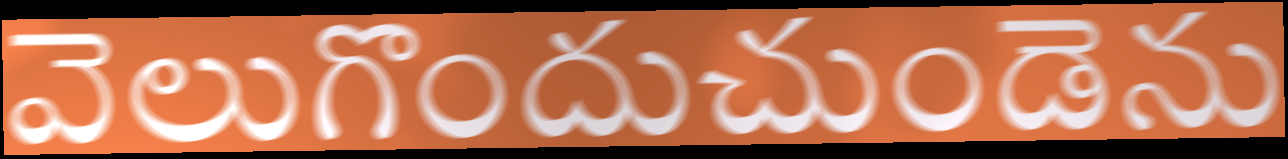
వెలుగొందుచుండెను